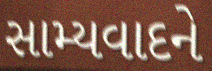
સામ્યવાદને